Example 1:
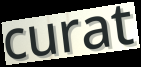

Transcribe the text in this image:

curat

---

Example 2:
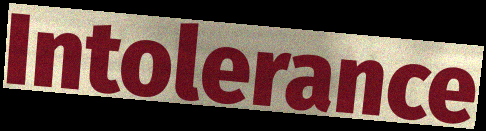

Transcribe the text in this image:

Intolerance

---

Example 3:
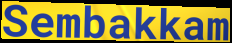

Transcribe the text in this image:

Sembakkam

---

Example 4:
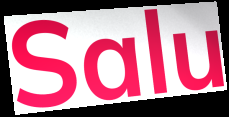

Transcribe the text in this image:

Salu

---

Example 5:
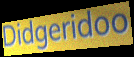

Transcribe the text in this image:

Didgeridoo